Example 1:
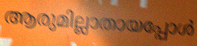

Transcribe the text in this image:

ആരുമില്ലാതായപ്പോൾ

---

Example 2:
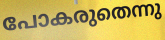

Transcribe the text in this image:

പോകരുതെന്നു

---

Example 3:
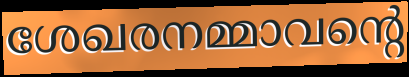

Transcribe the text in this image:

ശേഖരനമ്മാവന്റെ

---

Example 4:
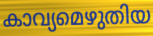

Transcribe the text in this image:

കാവ്യമെഴുതിയ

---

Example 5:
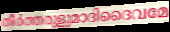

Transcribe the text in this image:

തീർത്തരുളുമാദിദൈവമേ